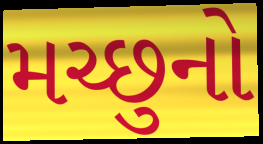
મચ્છુનો